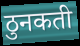
ठुनकती